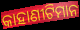
କାହାଣୀଟିମାନ